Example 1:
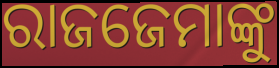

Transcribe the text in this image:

ରାଜଜେମାଙ୍କୁ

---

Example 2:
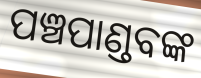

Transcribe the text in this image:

ପଞ୍ଚପାଣ୍ଡବଙ୍କ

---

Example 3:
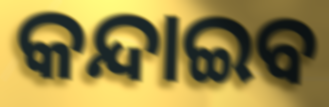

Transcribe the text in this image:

କନ୍ଦାଇବ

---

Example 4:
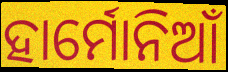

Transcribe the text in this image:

ହାର୍ମୋନିଆଁ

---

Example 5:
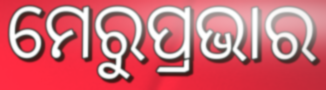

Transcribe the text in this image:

ମେରୁପ୍ରଭାର